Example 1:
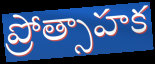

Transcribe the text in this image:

ప్రోత్సాహక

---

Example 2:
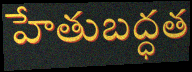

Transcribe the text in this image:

హేతుబద్ధత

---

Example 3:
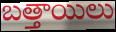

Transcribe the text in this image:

బత్తాయిలు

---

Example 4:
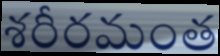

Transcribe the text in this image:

శరీరమంత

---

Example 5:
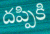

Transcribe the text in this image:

దప్పికి